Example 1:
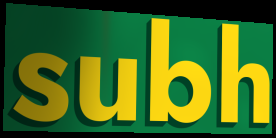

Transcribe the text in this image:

subh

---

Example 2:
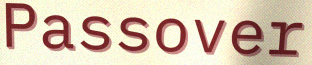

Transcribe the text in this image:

Passover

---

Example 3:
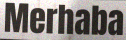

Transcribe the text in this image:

Merhaba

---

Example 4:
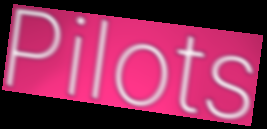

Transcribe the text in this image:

Pilots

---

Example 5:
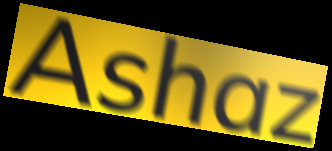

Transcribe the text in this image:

Ashaz